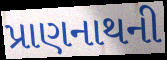
પ્રાણનાથની